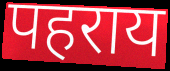
पहराय